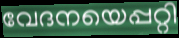
വേദനയെപ്പറ്റി